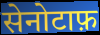
सेनोटाफ़